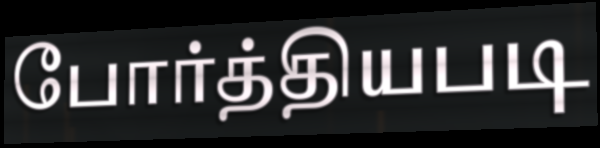
போர்த்தியபடி